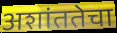
अशांततेचा